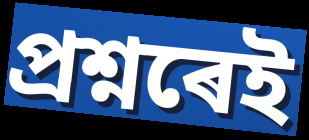
প্ৰশ্নৰেই